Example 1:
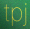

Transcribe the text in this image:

tpj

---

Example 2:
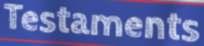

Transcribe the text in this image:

Testaments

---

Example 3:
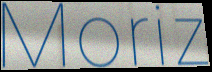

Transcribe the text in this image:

Moriz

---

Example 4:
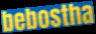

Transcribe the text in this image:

bebostha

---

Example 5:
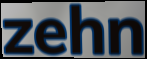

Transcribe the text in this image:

zehn